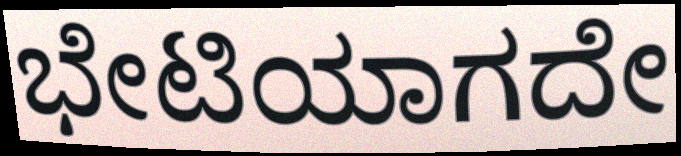
ಭೇಟಿಯಾಗದೇ